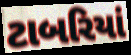
ટાબરિયાં